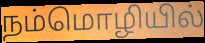
நம்மொழியில்